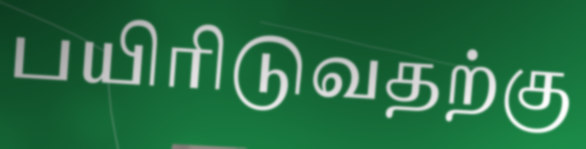
பயிரிடுவதற்கு